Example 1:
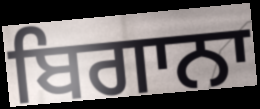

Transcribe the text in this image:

ਬਿਗਾਨਾ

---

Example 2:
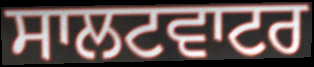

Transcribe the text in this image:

ਸਾਲਟਵਾਟਰ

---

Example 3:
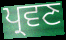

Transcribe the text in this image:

ਪ੍ਰਵਣ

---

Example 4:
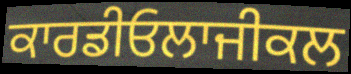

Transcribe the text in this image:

ਕਾਰਡੀਓਲਾਜੀਕਲ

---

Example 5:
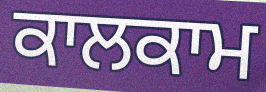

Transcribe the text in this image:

ਕਾਲਕਾਮ